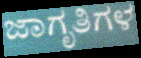
ಜಾಗೃತಿಗಳ